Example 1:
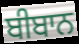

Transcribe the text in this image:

ਬੀਬਾਨ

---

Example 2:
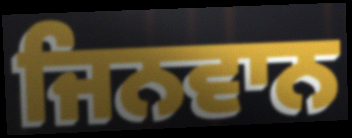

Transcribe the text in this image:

ਜਿਨਵਾਨ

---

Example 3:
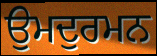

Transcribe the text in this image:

ਉਮਦੁਰਮਨ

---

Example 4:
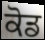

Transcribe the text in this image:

ਕੋਡ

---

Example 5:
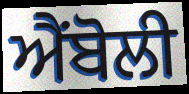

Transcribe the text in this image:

ਐਂਬੋਲੀ